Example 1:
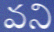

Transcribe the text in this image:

వని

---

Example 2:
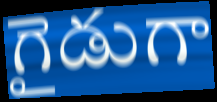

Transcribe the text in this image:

గైడుగా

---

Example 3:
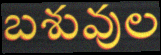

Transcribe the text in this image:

బశువుల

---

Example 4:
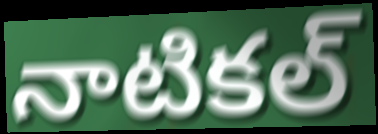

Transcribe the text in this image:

నాటికల్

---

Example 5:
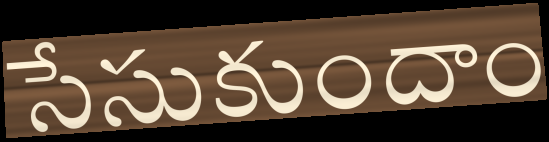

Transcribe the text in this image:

సేసుకుందాం